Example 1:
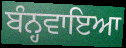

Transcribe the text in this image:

ਬੰਨ੍ਹਵਾਇਆ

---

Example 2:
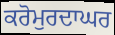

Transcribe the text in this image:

ਕਰੋਮੁਰਦਾਘਰ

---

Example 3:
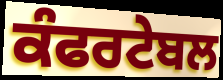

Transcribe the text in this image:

ਕੰਫਰਟੇਬਲ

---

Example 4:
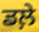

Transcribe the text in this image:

ਡਲ਼ੇ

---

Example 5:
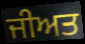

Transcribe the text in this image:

ਜੀਅਤ